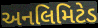
અનલિમિટેડ